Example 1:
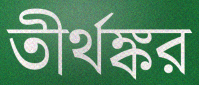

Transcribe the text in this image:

তীর্থঙ্কর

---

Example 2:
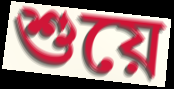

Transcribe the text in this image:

শুয়ে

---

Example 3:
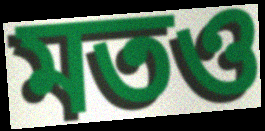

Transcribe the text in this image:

মতও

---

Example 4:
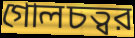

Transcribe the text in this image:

গোলচত্বর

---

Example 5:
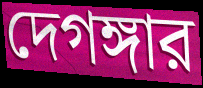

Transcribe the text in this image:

দেগঙ্গার